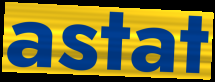
astat